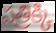
పత్రిక్కి